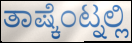
ತಾಷ್ಕೆಂಟ್ನಲ್ಲಿ